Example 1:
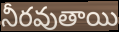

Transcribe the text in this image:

నీరవుతాయి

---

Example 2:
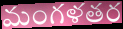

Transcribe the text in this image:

మంగళతర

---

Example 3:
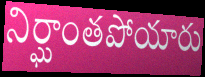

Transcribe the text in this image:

నిర్ఘాంతపోయారు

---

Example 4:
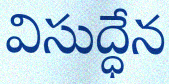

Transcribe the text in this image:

విసుద్ధేన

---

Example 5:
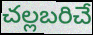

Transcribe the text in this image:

చల్లబరిచే